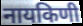
नायकिणी